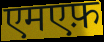
एमएफ़